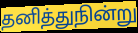
தனித்துநின்று